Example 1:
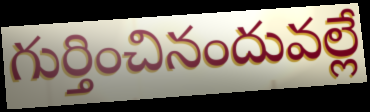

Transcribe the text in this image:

గుర్తించినందువల్లే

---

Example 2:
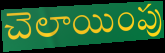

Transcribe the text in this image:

చెలాయింపు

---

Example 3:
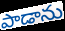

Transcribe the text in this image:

పాడాను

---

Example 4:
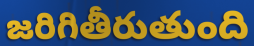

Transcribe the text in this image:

జరిగితీరుతుంది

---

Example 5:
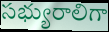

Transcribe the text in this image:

సభ్యురాలిగా